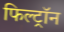
फिल्ट्रॉन